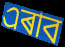
এৰাব